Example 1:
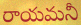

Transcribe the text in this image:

రాయమనీ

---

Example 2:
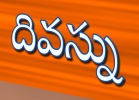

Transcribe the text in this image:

దివస్ను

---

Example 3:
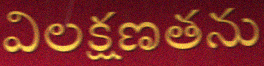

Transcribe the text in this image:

విలక్షణతను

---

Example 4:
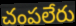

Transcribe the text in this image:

చంపలేరు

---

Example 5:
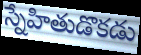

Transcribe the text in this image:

స్నేహితుడొకడు